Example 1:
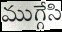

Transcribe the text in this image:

ముగ్గేసి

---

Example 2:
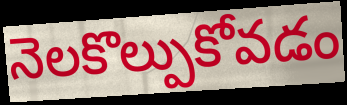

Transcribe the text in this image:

నెలకొల్పుకోవడం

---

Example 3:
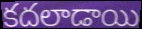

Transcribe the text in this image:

కదలాడాయి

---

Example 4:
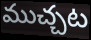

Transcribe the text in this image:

ముచ్చట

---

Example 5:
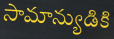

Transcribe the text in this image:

సామాన్యుడికి